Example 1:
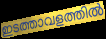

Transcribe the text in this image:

ഇടത്താവളത്തിൽ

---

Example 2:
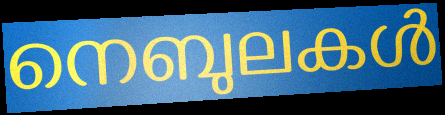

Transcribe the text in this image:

നെബുലകൾ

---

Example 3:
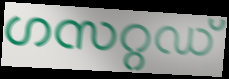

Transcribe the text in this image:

ഗസറ്റഡ്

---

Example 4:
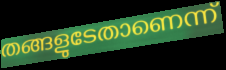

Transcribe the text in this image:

തങ്ങളുടേതാണെന്ന്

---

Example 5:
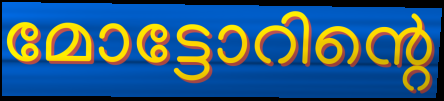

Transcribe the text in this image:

മോട്ടോറിന്റെ